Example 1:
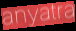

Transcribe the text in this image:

anyatra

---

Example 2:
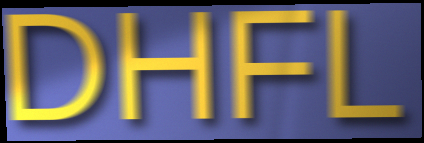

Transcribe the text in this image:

DHFL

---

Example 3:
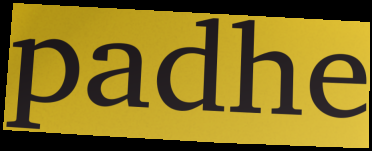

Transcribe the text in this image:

padhe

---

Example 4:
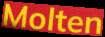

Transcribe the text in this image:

Molten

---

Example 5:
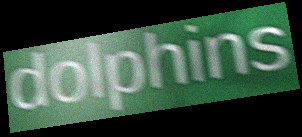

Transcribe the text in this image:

dolphins